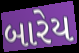
બારેય